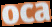
oca